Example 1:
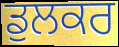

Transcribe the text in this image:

ਡੁਲਕਰ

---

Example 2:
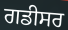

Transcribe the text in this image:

ਗਡੀਸਰ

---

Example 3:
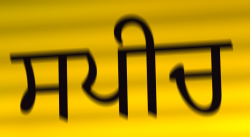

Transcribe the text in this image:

ਸਪੀਚ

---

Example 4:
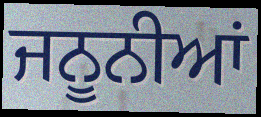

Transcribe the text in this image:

ਜਨੂਨੀਆਂ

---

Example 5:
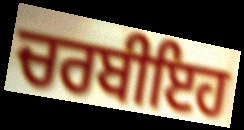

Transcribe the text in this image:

ਚਰਬੀਇਹ